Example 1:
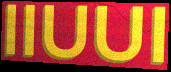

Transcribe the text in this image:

IIUUI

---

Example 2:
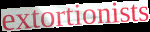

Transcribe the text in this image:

extortionists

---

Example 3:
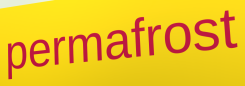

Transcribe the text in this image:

permafrost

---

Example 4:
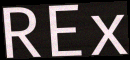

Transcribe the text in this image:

REx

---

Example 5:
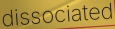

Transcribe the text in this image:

dissociated